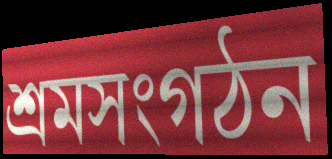
শ্রমসংগঠন